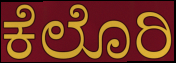
ಕೆಲೊರಿ